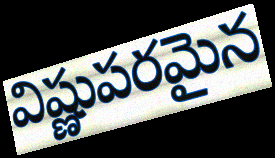
విష్ణుపరమైన